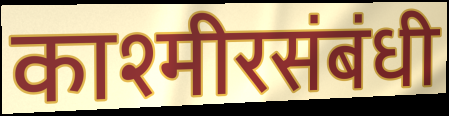
काश्मीरसंबंधी